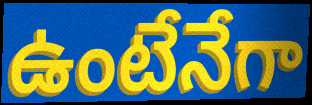
ఉంటేనేగా